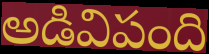
అడివిపంది